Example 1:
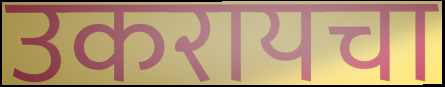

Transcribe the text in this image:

उकरायचा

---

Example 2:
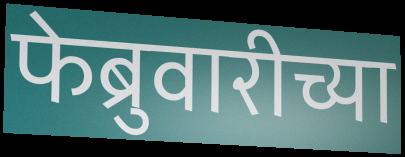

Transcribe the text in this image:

फेब्रुवारीच्या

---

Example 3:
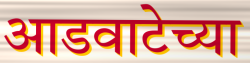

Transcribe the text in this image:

आडवाटेच्या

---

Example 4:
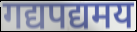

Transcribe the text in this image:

गद्यपद्यमय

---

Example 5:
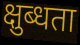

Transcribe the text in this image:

क्षुब्धता